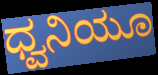
ಧ್ವನಿಯೂ